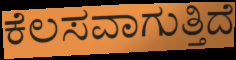
ಕೆಲಸವಾಗುತ್ತಿದೆ